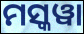
ମସ୍କୱା